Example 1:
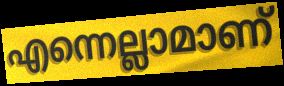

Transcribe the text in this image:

എന്നെല്ലാമാണ്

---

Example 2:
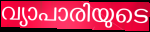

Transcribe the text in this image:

വ്യാപാരിയുടെ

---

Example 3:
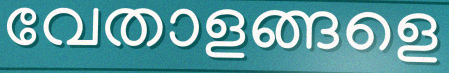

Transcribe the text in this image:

വേതാളങ്ങളെ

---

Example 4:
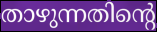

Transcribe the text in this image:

താഴുന്നതിന്റെ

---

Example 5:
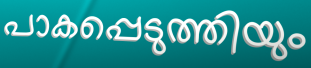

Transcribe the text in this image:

പാകപ്പെടുത്തിയും